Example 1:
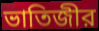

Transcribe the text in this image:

ভাতিজীর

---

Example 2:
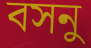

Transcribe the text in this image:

বসনু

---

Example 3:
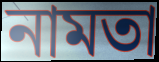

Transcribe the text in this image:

নামতা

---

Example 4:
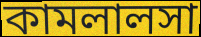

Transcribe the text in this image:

কামলালসা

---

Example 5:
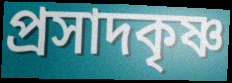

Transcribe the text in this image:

প্রসাদকৃষ্ণ